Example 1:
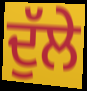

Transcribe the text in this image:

ਦੁੱਲੇ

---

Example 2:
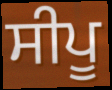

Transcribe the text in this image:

ਸੀਪੂ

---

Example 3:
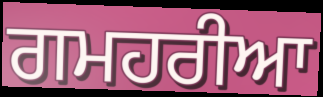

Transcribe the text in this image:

ਗਮਹਰੀਆ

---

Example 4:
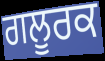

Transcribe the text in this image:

ਗਲੂਰਕ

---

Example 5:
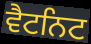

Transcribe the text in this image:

ਵੈਟਨਿਟ